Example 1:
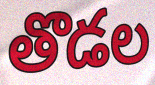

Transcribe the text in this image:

తొడల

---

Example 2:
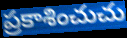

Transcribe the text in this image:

ప్రకాశించుచు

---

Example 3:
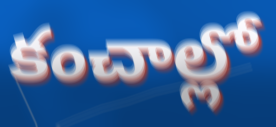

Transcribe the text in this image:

కంచాల్లో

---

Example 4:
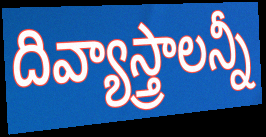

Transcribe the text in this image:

దివ్యాస్త్రాలన్నీ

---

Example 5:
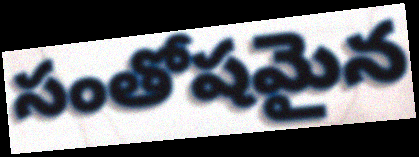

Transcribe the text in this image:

సంతోషమైన